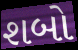
શબો